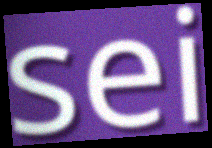
sei